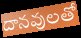
దానవులతో